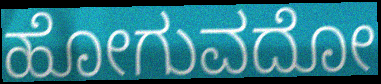
ಹೋಗುವದೋ